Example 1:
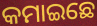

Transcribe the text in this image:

କମାଇଛେ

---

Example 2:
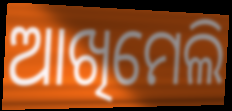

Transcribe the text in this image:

ଆଖିମେଲି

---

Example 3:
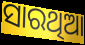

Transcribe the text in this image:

ସାରଥିଆ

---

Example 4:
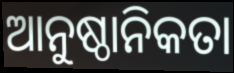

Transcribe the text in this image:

ଆନୁଷ୍ଠାନିକତା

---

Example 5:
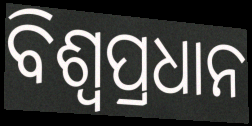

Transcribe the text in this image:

ବିଶ୍ୱପ୍ରଧାନ